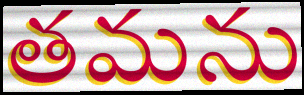
తమను